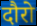
दौरो